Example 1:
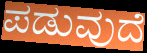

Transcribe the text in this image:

ಪಡುವುದೆ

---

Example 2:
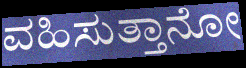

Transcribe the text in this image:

ವಹಿಸುತ್ತಾನೋ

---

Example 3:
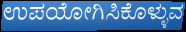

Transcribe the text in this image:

ಉಪಯೋಗಿಸಿಕೊಳ್ಳುವ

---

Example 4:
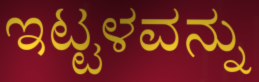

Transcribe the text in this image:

ಇಟ್ಟಳವನ್ನು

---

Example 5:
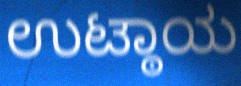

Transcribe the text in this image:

ಉಟ್ಠಾಯ